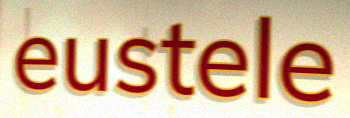
eustele